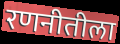
रणनीतीला